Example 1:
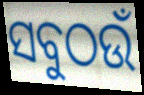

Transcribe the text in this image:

ସବୁଠଉଁ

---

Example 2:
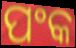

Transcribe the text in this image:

ପଂକ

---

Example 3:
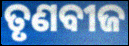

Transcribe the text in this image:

ତୃଣବୀଜ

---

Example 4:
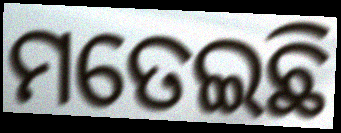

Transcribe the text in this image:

ମତେଇଛି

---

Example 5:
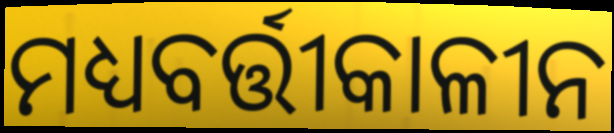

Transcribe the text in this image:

ମଧ୍ୟବର୍ତ୍ତୀକାଳୀନ